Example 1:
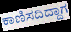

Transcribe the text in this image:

ಕಾಣಿಸದಿದ್ದಾಗ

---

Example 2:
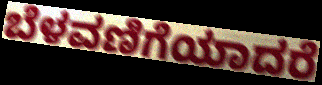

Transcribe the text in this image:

ಬೆಳವಣಿಗೆಯಾದರೆ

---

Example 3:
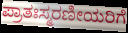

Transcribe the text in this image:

ಪ್ರಾತಃಸ್ಮರಣೀಯರಿಗೆ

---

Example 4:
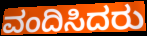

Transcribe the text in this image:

ವಂದಿಸಿದರು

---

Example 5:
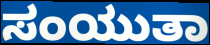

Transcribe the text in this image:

ಸಂಯುತಾ